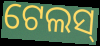
ଟେଲସ୍